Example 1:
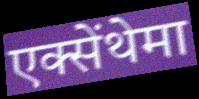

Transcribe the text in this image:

एक्सेंथेमा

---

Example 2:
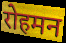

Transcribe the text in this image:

रोहमन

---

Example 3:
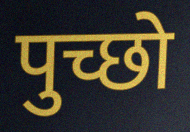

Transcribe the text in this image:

पुच्छो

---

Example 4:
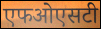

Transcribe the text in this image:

एफओएसटी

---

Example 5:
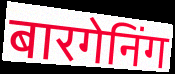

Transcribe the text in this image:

बारगेनिंग